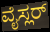
ವೈಸ್ಲರ್